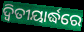
ଦ୍ୱିତୀୟାର୍ଦ୍ଧରେ